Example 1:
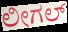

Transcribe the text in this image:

ಲೀಗಲ್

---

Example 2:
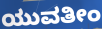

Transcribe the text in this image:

ಯುವತೀಂ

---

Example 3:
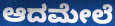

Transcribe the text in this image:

ಆದಮೇಲೆ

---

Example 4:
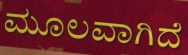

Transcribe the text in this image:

ಮೂಲವಾಗಿದೆ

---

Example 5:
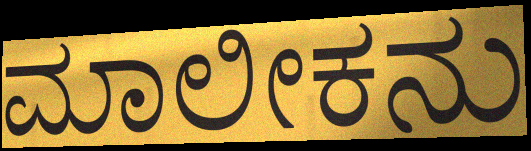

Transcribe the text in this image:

ಮಾಲೀಕನು